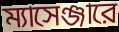
ম্যাসেঞ্জারে